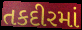
તકદીરમાં